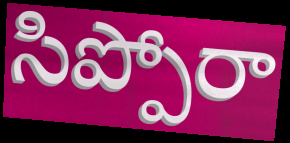
సిప్పోరా